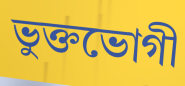
ভুক্তভোগী